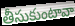
తీసుకుంటావా